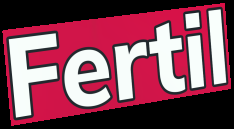
Fertil